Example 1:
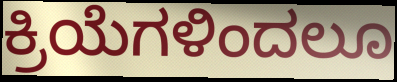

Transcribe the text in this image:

ಕ್ರಿಯೆಗಳಿಂದಲೂ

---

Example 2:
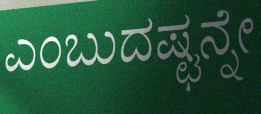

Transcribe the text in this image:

ಎಂಬುದಷ್ಟನ್ನೇ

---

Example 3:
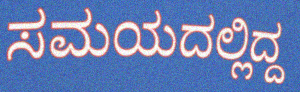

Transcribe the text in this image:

ಸಮಯದಲ್ಲಿದ್ದ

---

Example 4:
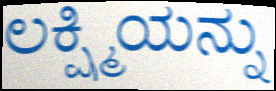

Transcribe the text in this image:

ಲಕ್ಷ್ಮಿಯನ್ನು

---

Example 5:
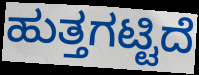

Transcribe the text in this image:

ಹುತ್ತಗಟ್ಟಿದೆ